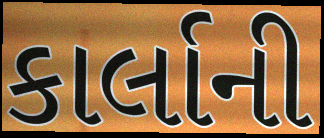
કાર્લાની